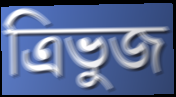
ত্রিভুজ